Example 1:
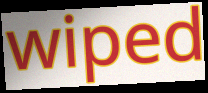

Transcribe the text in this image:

wiped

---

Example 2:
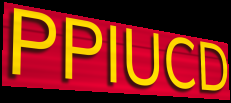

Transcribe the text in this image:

PPIUCD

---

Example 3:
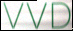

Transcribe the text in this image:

VVD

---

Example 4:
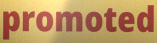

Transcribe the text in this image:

promoted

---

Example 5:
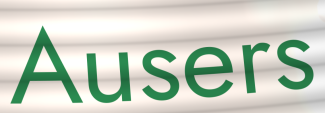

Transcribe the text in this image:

Ausers